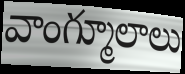
వాంగ్మూలాలు